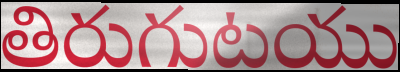
తిరుగుటయు